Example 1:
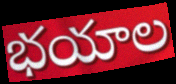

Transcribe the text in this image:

భయాల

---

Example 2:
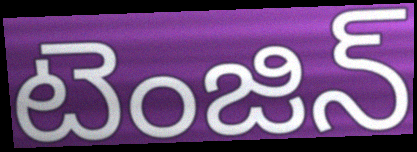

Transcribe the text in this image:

టెంజిన్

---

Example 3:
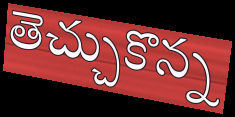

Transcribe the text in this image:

తెచ్చుకొన్న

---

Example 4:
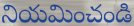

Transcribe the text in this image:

నియమించండి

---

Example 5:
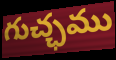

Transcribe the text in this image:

గుచ్ఛము